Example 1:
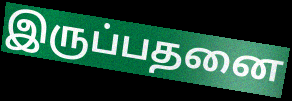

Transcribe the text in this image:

இருப்பதனை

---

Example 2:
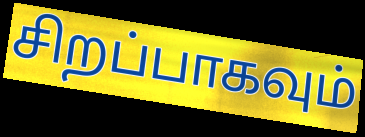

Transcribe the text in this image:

சிறப்பாகவும்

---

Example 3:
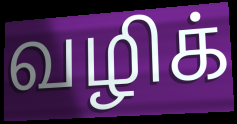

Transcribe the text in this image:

வழிக்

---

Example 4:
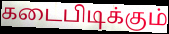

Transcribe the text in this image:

கடைபிடிக்கும்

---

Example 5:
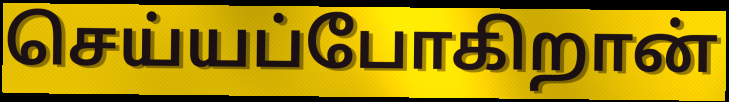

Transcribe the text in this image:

செய்யப்போகிறான்